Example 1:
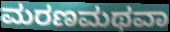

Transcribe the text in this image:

ಮರಣಮಥವಾ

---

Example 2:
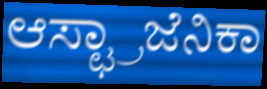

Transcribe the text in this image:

ಆಸ್ಟ್ರಾಜೆನಿಕಾ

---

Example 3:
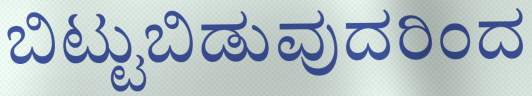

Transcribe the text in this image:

ಬಿಟ್ಟುಬಿಡುವುದರಿಂದ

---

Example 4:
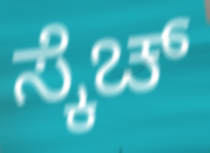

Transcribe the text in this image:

ಸ್ಕೆಚ್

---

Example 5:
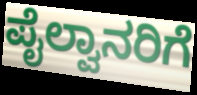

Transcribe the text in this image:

ಪೈಲ್ವಾನರಿಗೆ